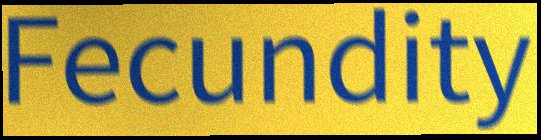
Fecundity